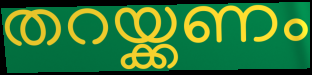
തറയ്ക്കണം